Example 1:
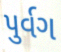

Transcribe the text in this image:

પુર્વગ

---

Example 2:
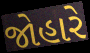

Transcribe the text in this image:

જોહારે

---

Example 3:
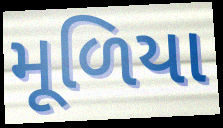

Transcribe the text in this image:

મૂળિયા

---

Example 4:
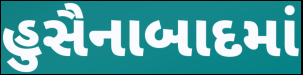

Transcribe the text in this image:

હુસૈનાબાદમાં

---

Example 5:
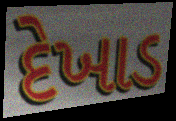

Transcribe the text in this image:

દેખાડ